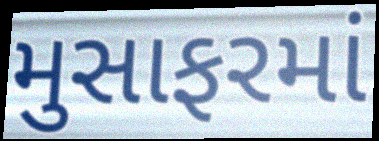
મુસાફરમાં